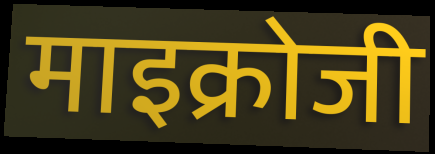
माइक्रोजी